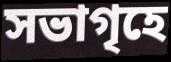
সভাগৃহে